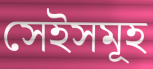
সেইসমূহ